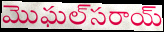
మొఘల్‌సరాయ్